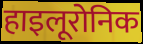
हाइलूरोनिक